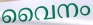
വൈനം